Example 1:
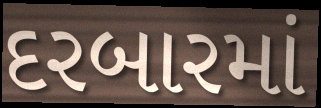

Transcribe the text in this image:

દરબારમાં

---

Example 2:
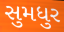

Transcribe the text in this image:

સુમધુર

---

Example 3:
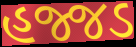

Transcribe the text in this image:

હજ્જડ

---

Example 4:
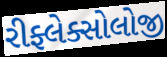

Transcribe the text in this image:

રીફ્લેક્સોલોજી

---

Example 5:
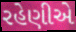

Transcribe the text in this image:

રહેણીએ